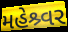
મહેશ્ર્વર